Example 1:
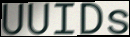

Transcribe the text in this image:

UUIDs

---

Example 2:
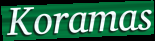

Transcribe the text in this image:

Koramas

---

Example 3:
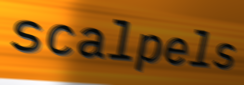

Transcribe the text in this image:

scalpels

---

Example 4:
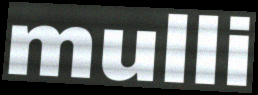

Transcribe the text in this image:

mulli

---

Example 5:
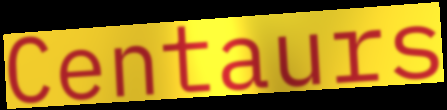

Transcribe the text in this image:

Centaurs